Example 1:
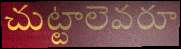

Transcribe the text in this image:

చుట్టాలెవరూ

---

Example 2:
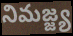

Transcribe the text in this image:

నిమజ్జ్య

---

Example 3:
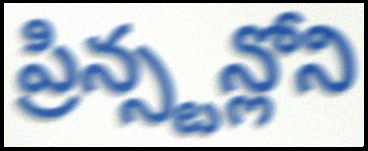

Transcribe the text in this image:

ప్రిన్స్టన్లోని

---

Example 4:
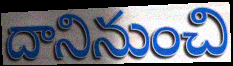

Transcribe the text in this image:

దానినుంచి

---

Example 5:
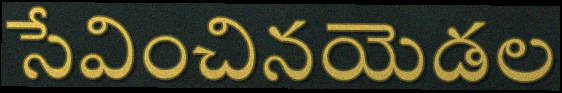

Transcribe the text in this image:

సేవించినయెడల